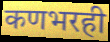
कणभरही